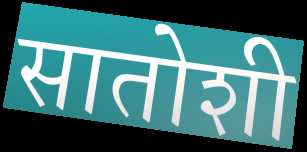
सातोशी